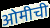
ओमीची